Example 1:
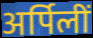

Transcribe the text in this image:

अर्पिलीं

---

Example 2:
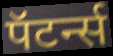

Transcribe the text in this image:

पॅटर्न्स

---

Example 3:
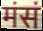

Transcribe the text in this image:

मंसं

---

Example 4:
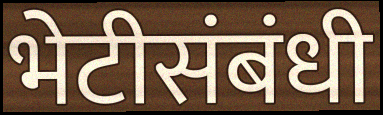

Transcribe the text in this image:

भेटीसंबंधी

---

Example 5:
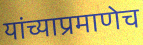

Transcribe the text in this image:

यांच्याप्रमाणेच